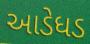
આડેધડ